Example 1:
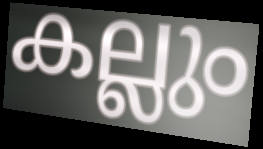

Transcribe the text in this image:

കല്ലും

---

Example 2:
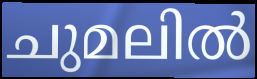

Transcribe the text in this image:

ചുമലിൽ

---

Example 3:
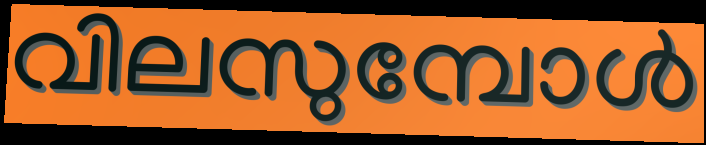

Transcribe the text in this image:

വിലസുമ്പോൾ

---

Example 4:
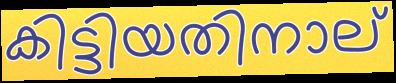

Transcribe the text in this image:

കിട്ടിയതിനാല്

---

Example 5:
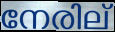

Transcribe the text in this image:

നേരില്